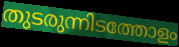
തുടരുന്നിടത്തോളം